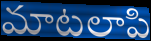
మాటలాపి